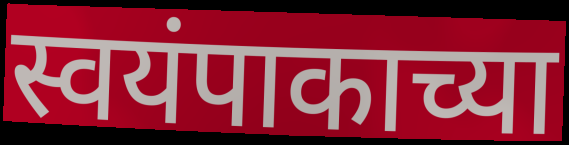
स्वयंपाकाच्या